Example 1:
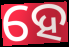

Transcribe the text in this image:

ହେ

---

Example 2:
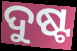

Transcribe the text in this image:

ଦୁଷ୍ଟ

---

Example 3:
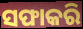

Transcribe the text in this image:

ସଫାକରି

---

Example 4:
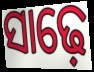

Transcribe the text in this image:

ସାଢ଼େ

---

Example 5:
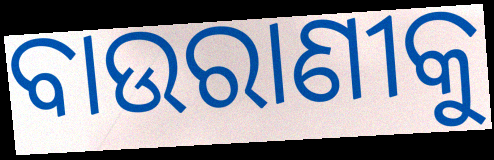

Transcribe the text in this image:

ବାଉରାଣୀକୁ